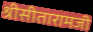
श्रीसीतारामजी